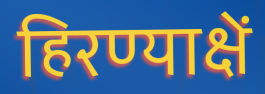
हिरण्याक्षें